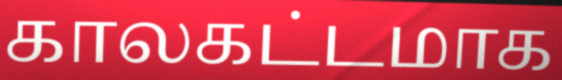
காலகட்டமாக